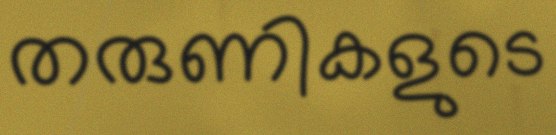
തരുണികളുടെ